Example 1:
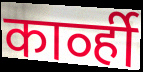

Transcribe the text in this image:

कार्व्ही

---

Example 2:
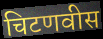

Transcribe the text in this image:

चिटणवीस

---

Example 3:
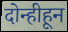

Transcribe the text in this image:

दोन्हीहून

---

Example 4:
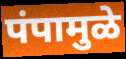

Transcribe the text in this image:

पंपामुळे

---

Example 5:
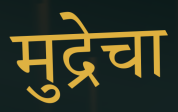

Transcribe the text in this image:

मुद्रेचा